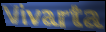
Vivarta